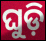
ଘୁଡ଼ି